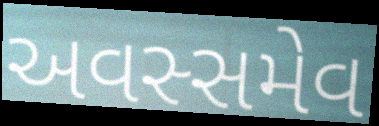
અવસ્સમેવ